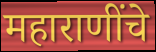
महाराणींचे